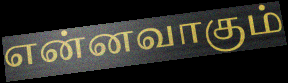
என்னவாகும்